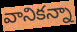
వానికన్నా